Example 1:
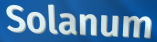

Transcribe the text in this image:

Solanum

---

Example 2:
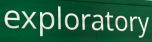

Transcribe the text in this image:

exploratory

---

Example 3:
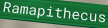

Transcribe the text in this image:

Ramapithecus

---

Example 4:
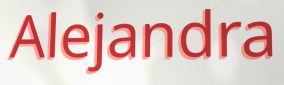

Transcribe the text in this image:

Alejandra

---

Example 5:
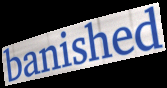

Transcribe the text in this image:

banished